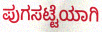
ಪುಗಸಟ್ಟೆಯಾಗಿ